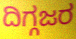
ದಿಗ್ಗಜರ